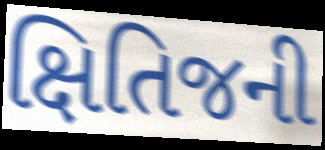
ક્ષિતિજની